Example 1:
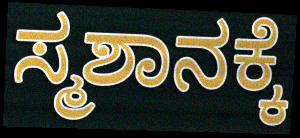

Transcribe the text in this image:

ಸ್ಮಶಾನಕ್ಕೆ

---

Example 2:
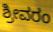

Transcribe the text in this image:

ಶ್ರೀವರಂ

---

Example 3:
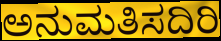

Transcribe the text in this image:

ಅನುಮತಿಸದಿರಿ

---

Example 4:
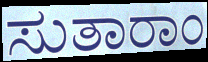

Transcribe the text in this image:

ಸುತಾರಾಂ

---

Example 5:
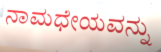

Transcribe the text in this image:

ನಾಮಧೇಯವನ್ನು